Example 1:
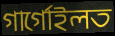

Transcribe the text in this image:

গাৰ্গোইলত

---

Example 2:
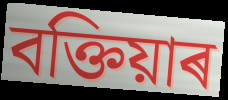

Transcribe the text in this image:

বক্তিয়াৰ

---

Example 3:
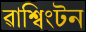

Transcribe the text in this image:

ৱাশ্বিংটন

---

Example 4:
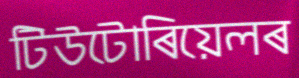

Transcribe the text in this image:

টিউটোৰিয়েলৰ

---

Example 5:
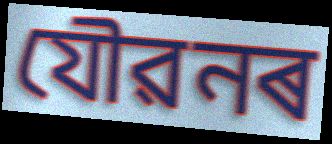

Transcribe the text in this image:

যৌৱনৰ